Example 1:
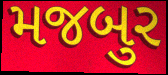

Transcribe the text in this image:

મજબુર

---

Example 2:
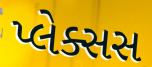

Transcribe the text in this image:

પ્લેક્સસ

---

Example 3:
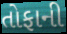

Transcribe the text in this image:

તોફાની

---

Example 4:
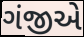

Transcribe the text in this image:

ગંજીએ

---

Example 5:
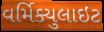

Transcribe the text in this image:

વર્મિક્યુલાઇટ